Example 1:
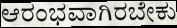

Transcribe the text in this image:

ಆರಂಭವಾಗಿರಬೇಕು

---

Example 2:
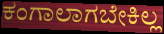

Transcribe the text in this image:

ಕಂಗಾಲಾಗಬೇಕಿಲ್ಲ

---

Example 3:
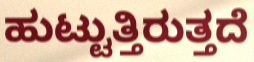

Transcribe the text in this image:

ಹುಟ್ಟುತ್ತಿರುತ್ತದೆ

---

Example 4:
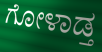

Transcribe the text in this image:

ಗೋಳಾಡ್ತ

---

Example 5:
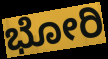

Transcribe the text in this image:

ಭೋರಿ